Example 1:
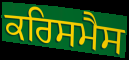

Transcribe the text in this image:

ਕਰਿਸਮੈਸ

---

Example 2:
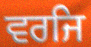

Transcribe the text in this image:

ਵਰਜਿ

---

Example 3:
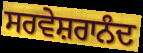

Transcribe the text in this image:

ਸਰਵੇਸ਼ਰਾਨੰਦ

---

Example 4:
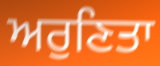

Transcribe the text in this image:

ਅਰੁਣਿਤਾ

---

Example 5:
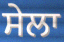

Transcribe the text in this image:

ਸੇਲਾ